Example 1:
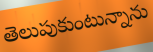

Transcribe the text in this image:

తెలుపుకుంటున్నాను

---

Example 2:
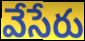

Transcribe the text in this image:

వేసేరు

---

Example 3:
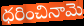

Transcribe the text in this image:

ధరించినామె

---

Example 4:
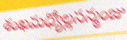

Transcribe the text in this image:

శంఖమధ్యోల్లసన్మంజు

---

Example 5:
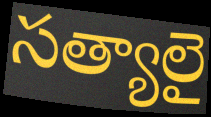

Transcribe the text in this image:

సత్యాలై